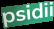
psidii